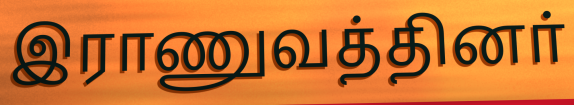
இராணுவத்தினர்